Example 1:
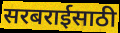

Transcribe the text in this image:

सरबराईसाठी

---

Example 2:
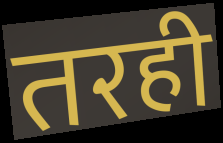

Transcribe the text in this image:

तरही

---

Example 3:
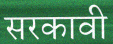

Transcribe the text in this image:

सरकावी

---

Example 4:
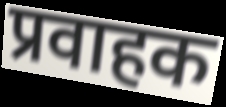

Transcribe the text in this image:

प्रवाहक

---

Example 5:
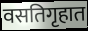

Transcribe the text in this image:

वसतिगृहात